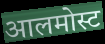
आलमोस्ट